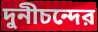
দুনীচন্দের